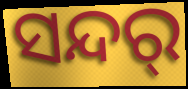
ସନ୍ଦର୍